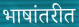
भाषांतरीत